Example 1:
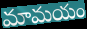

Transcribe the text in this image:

మామయం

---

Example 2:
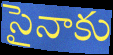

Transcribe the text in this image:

సైనాకు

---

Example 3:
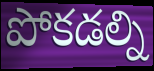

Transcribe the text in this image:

పోకడల్ని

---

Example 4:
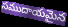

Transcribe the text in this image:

సముదాయమైన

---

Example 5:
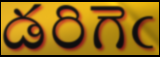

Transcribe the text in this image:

డరిగెఁ